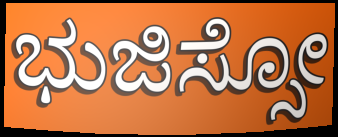
ಭುಜಿಸ್ಸೋ